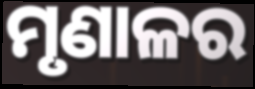
ମୃଣାଳର